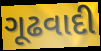
ગૂઢવાદી